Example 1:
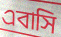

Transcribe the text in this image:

এবাসি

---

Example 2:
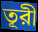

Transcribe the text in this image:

তূরী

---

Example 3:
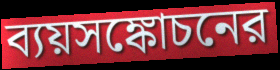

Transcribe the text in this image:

ব্যয়সঙ্কোচনের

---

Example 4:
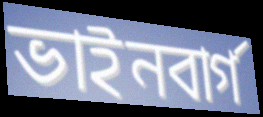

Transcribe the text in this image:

ভাইনবার্গ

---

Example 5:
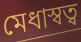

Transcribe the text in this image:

মেধাস্বত্ব